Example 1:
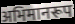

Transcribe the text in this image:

अभिमानरूप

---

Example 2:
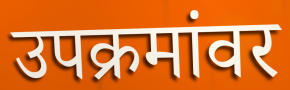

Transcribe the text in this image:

उपक्रमांवर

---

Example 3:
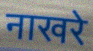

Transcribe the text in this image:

नाखरे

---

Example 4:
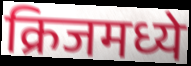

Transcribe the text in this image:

क्रिजमध्ये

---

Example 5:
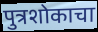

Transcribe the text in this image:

पुत्रशोकाचा